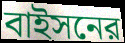
বাইসনের